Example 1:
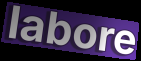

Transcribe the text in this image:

labore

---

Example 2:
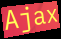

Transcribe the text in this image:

Ajax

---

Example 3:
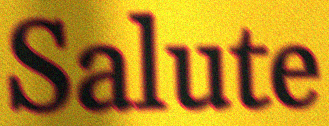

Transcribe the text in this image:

Salute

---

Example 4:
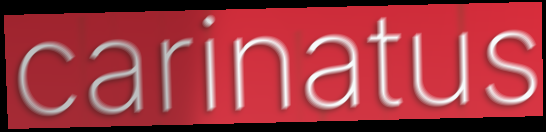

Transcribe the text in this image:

carinatus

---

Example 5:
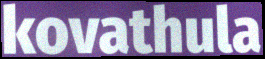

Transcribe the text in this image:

kovathula